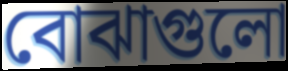
বোঝাগুলো